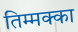
तिम्मक्का